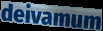
deivamum